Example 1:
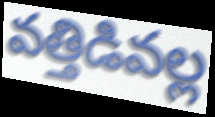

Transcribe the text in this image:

వత్తిడివల్ల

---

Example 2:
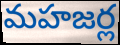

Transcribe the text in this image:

మహజర్ల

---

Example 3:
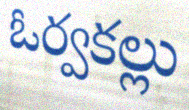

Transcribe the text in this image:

ఓర్వకల్లు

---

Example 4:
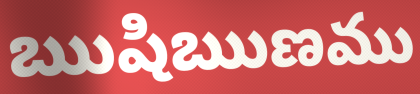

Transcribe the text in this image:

ఋషిఋణము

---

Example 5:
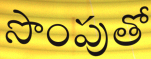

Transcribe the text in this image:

సొంపుతో